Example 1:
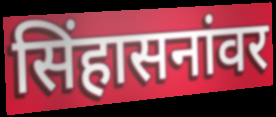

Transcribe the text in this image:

सिंहासनांवर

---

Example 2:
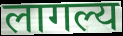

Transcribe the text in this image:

लागल्य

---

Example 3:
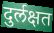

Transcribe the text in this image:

दुर्लक्षत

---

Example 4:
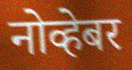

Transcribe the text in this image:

नोव्हेबर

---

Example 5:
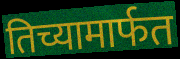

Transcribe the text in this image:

तिच्यामार्फत